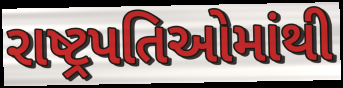
રાષ્ટ્રપતિઓમાંથી